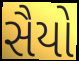
સૈયો